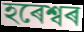
হৰেশ্বৰ